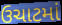
ઉચાટમાં